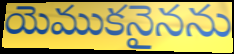
యెముకనైనను